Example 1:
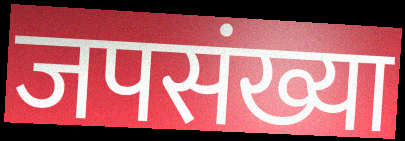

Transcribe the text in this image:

जपसंख्या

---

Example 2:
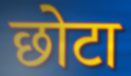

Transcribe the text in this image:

छोटा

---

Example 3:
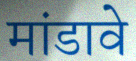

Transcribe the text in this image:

मांडावे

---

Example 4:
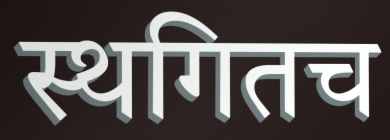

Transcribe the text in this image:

स्थगितच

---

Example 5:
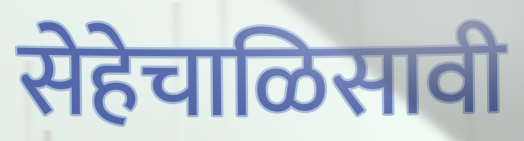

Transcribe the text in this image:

सेहेचाळिसावी